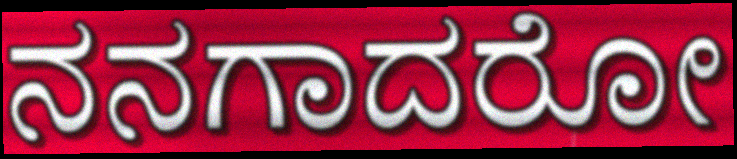
ನನಗಾದರೋ